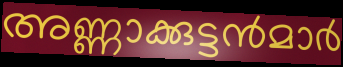
അണ്ണാക്കുട്ടൻമാർ